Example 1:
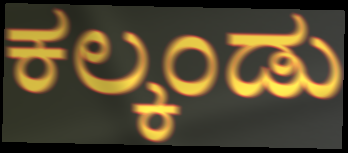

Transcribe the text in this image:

ಕಲ್ಕಂಡು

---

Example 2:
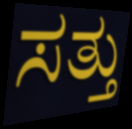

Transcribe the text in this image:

ಸತ್ತು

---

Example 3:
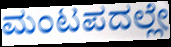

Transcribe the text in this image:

ಮಂಟಪದಲ್ಲೇ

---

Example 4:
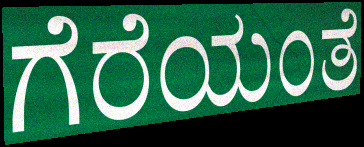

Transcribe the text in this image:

ಗೆರೆಯಂತೆ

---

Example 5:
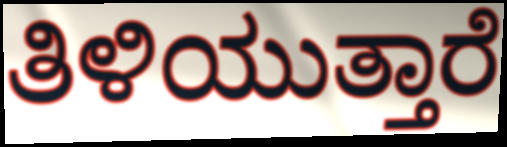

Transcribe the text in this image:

ತಿಳಿಯುತ್ತಾರೆ